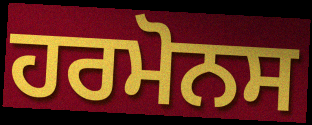
ਹਰਮੋਨਸ